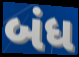
બંધ